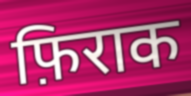
फ़िराक